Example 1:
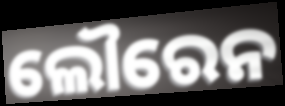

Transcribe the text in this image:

ଲୌରେନ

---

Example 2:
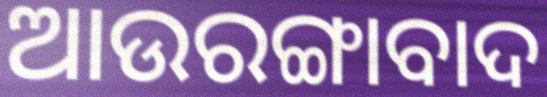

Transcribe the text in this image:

ଆଉରଙ୍ଗାବାଦ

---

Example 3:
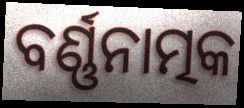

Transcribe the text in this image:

ବର୍ଣ୍ଣନାତ୍ମକ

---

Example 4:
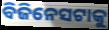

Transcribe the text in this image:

ବିଜିନେସଟାକୁ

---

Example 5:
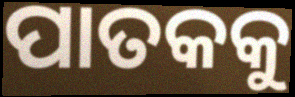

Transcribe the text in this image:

ପାତକକୁ